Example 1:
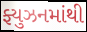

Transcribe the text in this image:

ફ્યુઝનમાંથી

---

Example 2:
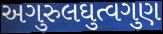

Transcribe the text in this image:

અગુરુલઘુત્વગુણ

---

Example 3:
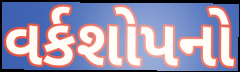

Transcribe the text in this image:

વર્કશોપનો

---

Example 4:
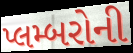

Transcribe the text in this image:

પ્લમ્બરોની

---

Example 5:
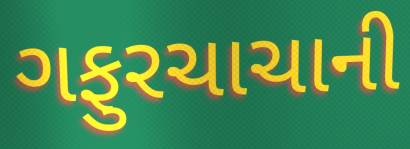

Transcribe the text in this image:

ગફુરચાચાની